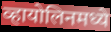
व्हायोलिनमध्ये